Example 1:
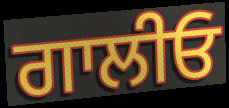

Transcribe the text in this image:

ਗਾਲੀਓ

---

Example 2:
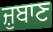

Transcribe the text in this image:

ਜ਼ੁਬਾਣ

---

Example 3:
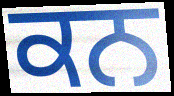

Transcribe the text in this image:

ਕਨ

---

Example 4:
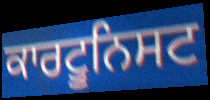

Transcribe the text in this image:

ਕਾਰਟੂਨਿਸਟ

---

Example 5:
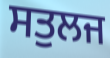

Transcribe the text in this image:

ਸਤੁਲਜ